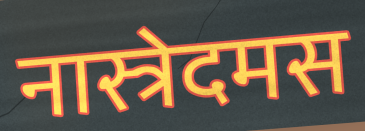
नास्त्रेदमस